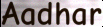
Aadhar